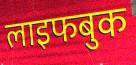
लाइफबुक